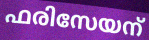
ഫരിസേയന്